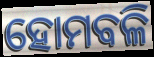
ହୋମବଳି